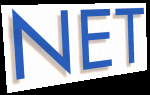
NET